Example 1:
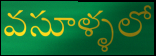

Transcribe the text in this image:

వసూళ్ళలో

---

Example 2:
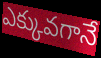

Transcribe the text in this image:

ఎక్కువగానే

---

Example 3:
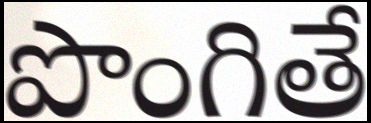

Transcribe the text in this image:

పొంగితే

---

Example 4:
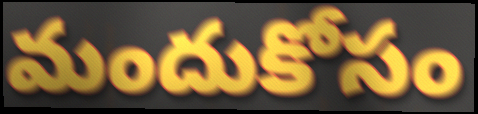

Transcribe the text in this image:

మందుకోసం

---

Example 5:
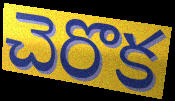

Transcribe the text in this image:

చెరొక